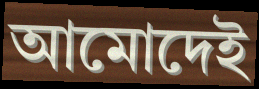
আমোদেই